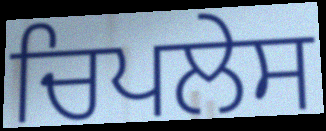
ਚਿਪਲੇਸ